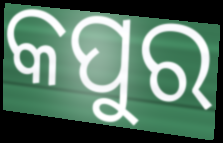
କପୁର